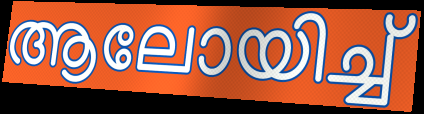
ആലോയിച്ച്